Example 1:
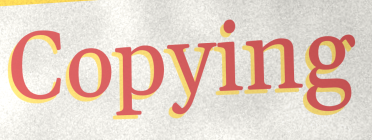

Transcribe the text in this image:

Copying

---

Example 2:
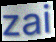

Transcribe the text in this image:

zai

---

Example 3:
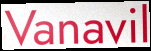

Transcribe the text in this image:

Vanavil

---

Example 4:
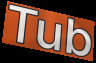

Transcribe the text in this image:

Tub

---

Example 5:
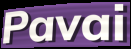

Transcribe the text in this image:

Pavai